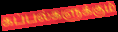
கப்பல்களுக்கும்